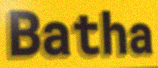
Batha